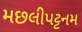
મછલીપટ્ટનમ